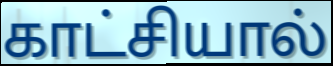
காட்சியால்